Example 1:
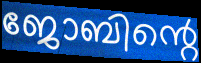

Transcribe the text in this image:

ജോബിന്റെ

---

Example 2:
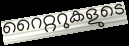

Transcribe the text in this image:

റൈറ്ററുകളുടെ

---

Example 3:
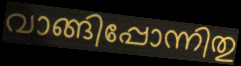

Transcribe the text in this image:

വാങ്ങിപ്പോന്നിതു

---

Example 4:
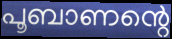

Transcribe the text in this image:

പൂബാണന്റെ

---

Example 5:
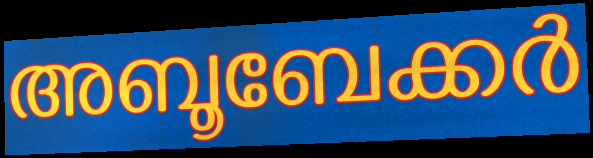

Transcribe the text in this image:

അബൂബേക്കർ